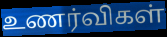
உணர்விகள்